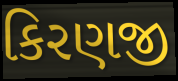
કિરણજી